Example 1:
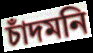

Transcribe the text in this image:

চাঁদমনি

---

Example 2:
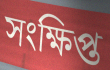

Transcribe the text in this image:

সংক্ষিপ্ত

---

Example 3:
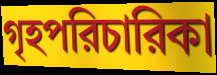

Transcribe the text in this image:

গৃহপরিচারিকা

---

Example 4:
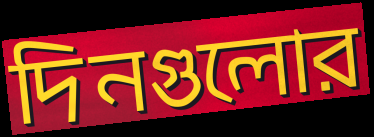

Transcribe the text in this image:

দিনগুলোর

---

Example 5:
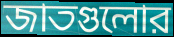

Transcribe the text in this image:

জাতগুলোর